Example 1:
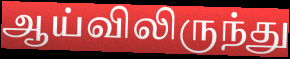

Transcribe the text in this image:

ஆய்விலிருந்து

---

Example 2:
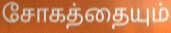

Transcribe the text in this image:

சோகத்தையும்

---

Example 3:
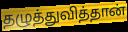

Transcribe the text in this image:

தழுத்துவித்தான்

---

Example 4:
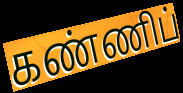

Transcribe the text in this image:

கண்ணிப்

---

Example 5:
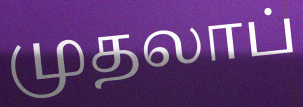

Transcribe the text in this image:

முதலாப்